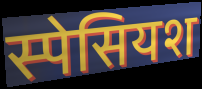
स्पेसियश